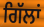
ਗਿੱਲਾਂ